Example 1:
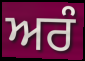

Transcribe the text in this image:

ਅਰੰ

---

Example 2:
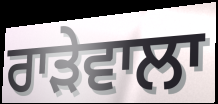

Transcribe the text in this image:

ਰਾੜੇਵਾਲਾ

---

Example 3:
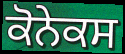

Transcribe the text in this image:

ਕੋਨੇਕਸ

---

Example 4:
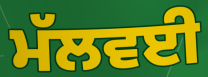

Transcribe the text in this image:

ਮੱਲਵਈ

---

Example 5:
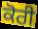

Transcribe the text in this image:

ਕੋਰੀ